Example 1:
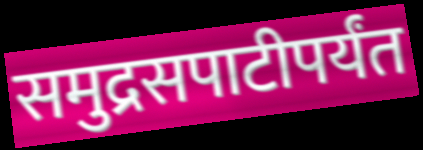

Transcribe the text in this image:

समुद्रसपाटीपर्यंत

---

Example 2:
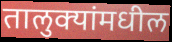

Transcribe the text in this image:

तालुक्यांमधील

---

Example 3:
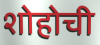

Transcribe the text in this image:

शोहोची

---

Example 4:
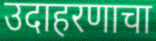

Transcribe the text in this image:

उदाहरणाचा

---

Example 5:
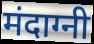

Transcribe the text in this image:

मंदाग्नी